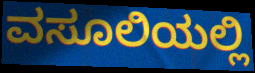
ವಸೂಲಿಯಲ್ಲಿ